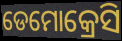
ଡେମୋକ୍ରେସି